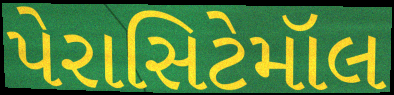
પેરાસિટેમૉલ